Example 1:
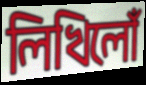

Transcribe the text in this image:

লিখিলোঁ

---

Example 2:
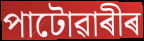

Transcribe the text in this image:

পাটোৱাৰীৰ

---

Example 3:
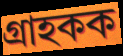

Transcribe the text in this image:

গ্ৰাহকক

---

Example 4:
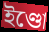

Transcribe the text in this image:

ইণ্ডো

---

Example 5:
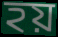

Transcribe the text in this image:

হয়